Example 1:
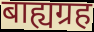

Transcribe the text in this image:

बाह्यग्रह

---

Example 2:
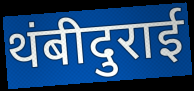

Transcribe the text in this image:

थंबीदुराई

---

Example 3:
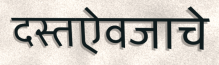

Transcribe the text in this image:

दस्तऐवजाचे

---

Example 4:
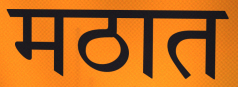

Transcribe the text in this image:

मठात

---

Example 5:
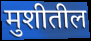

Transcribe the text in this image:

मुशीतील